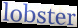
lobster